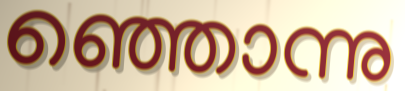
ഞ്ഞൊന്നു